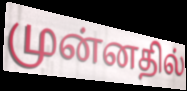
முன்னதில்